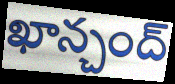
ఖాన్చంద్